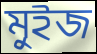
মুইজ